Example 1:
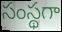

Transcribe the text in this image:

సంస్థగా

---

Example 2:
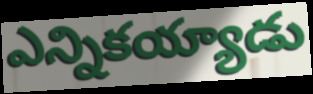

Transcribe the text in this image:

ఎన్నికయ్యాడు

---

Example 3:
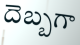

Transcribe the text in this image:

దెబ్బగా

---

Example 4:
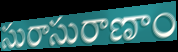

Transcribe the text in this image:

సురాసురాణాం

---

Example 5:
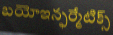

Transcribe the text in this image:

బయోఇన్ఫర్మేటిక్స్